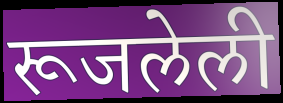
रूजलेली